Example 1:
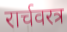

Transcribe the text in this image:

रार्चवरत्र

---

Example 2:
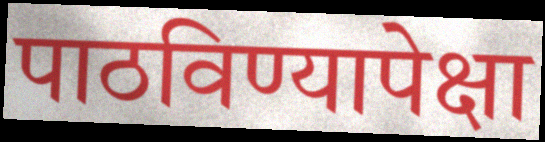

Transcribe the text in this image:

पाठविण्यापेक्षा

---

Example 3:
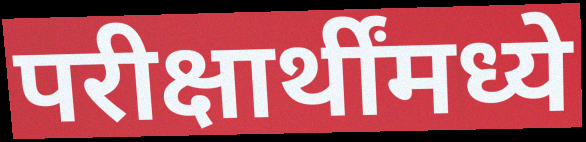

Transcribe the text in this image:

परीक्षार्थींमध्ये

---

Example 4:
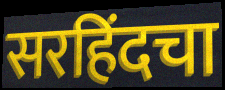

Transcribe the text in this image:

सरहिंदचा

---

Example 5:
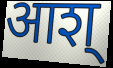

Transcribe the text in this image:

आश्